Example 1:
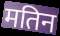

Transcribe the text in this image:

मतिन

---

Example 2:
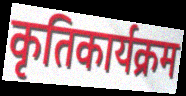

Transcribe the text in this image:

कृतिकार्यक्रम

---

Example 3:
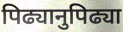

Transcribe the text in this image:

पिढ्यानुपिढ्या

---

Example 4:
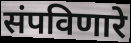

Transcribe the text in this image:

संपविणारे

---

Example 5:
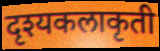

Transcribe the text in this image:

दृश्यकलाकृती